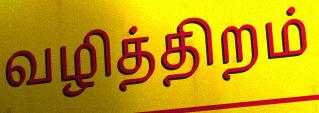
வழித்திறம்